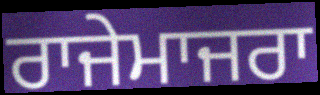
ਰਾਜੇਮਾਜਰਾ